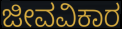
ಜೀವವಿಕಾರ